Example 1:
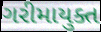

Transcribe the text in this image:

ગરીમાયુક્ત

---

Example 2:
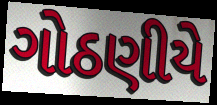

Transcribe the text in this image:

ગોઠણીયે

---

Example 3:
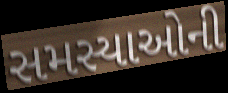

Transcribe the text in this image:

સમસ્યાઓની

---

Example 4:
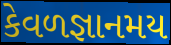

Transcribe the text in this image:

કેવળજ્ઞાનમય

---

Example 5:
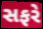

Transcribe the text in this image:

સફરે